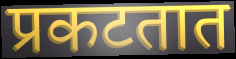
प्रकटतात